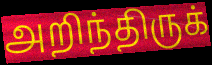
அறிந்திருக்